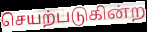
செயற்படுகின்ற